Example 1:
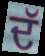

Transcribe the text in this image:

ਦੱ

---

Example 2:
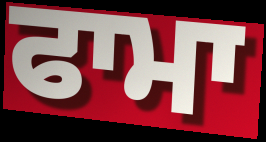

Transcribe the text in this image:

ਫਾਮਾ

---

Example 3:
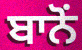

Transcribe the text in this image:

ਬਾਨੋਂ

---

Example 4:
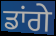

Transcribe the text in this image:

ਡਾਂਗੇ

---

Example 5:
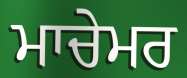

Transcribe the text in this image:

ਮਾਚੇਮਰ